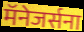
मॅनेजर्सना